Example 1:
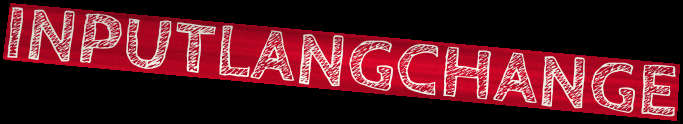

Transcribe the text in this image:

INPUTLANGCHANGE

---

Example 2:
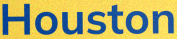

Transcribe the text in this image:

Houston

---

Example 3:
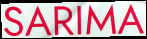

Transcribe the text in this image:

SARIMA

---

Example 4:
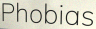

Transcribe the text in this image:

Phobias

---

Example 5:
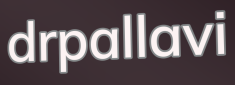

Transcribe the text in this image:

drpallavi